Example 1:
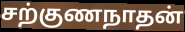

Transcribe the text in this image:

சற்குணநாதன்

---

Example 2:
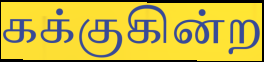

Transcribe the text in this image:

கக்குகின்ற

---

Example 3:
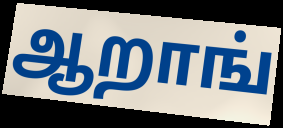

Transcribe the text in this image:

ஆறாங்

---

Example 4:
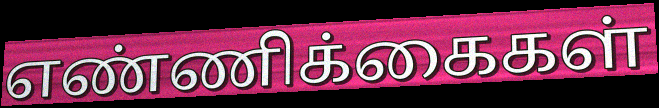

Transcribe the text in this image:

எண்ணிக்கைகள்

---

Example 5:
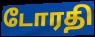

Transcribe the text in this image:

டோரதி